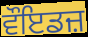
ਵੌਇਡਜ਼